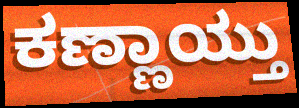
ಕಣ್ಣಾಯ್ತು